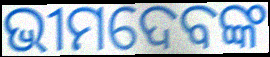
ଭୀମଦେବଙ୍କ